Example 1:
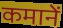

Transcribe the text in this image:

कमानें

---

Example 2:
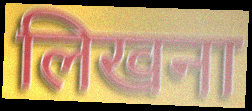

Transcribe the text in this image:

लिखना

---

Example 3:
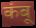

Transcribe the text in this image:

कंबू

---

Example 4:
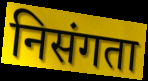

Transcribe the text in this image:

निसंगता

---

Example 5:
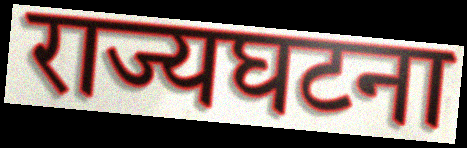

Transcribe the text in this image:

राज्यघटना